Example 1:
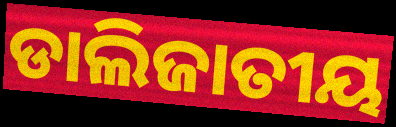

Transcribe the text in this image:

ଡାଲିଜାତୀୟ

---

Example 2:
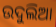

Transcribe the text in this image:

ଉଦୁଲିଆ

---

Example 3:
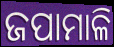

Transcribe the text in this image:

ଜପାମାଳି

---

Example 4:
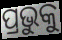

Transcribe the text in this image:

ପ୍ରଭୁକୁ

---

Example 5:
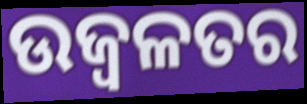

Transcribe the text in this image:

ଉଜ୍ବଳତର